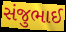
સંજુભાઈ